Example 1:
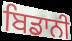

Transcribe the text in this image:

ਬਿਡਾਨੀ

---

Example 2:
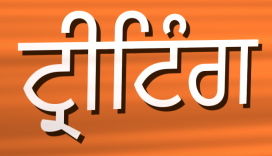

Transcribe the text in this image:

ਟ੍ਰੀਟਿੰਗ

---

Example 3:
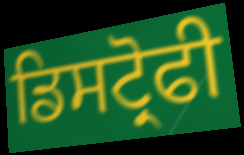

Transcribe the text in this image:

ਡਿਸਟ੍ਰੋਫੀ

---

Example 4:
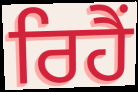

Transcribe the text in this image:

ਰਿਹੈਂ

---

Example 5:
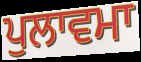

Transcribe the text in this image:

ਪੁਲਾਵਮਾ